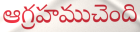
ఆగ్రహముచెంది